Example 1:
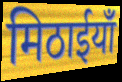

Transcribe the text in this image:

मिठाईयाँ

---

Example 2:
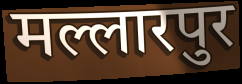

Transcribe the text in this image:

मल्लारपुर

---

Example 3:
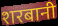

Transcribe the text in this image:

शरबानी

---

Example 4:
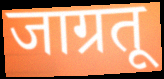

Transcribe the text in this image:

जाग्रतू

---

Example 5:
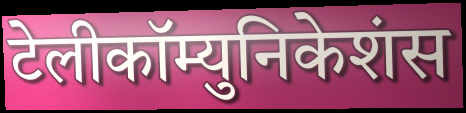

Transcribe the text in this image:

टेलीकॉम्युनिकेशंस